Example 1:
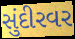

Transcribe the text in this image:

સુંદીરવર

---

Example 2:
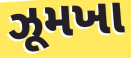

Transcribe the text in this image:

ઝૂમખા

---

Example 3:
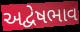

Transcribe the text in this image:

અદ્વેષભાવ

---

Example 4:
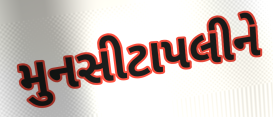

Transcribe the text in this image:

મુનસીટાપલીને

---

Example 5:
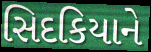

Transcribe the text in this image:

સિદકિયાને